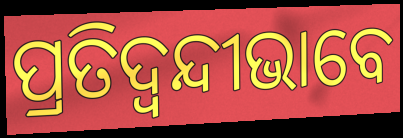
ପ୍ରତିଦ୍ୱନ୍ଦୀଭାବେ